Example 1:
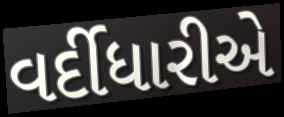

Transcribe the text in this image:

વર્દીધારીએ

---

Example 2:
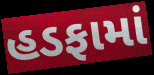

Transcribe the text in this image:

હડફામાં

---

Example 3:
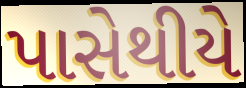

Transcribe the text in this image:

પાસેથીયે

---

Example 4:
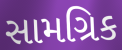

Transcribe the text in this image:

સામગ્રિક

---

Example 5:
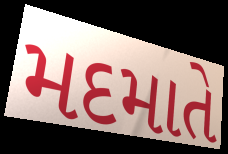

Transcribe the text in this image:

મદમાતે